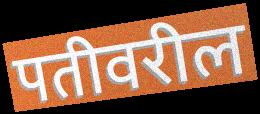
पतीवरील